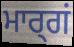
ਮਾਰ੍ਗਂ